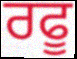
ਰਫੂ